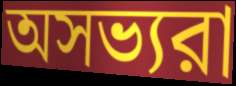
অসভ্যরা